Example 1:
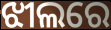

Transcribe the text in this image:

ଝୀଲରେ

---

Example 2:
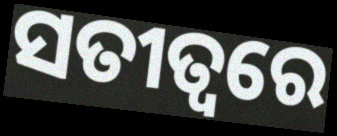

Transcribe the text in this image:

ସତୀତ୍ୱରେ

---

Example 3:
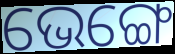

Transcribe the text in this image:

ଭେଙ୍ଗେ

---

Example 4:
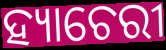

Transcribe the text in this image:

ହ୍ୟାଚେରୀ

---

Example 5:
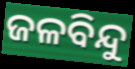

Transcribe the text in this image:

ଜଳବିନ୍ଦୁ